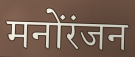
मनोंरंजन